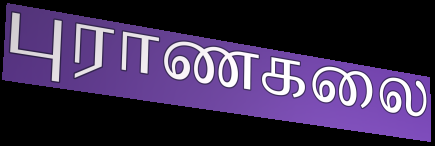
புராணகலை